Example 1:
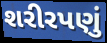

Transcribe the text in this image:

શરીરપણું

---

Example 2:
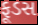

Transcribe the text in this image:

ફૂડસ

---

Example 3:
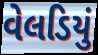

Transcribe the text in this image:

વેલડિયું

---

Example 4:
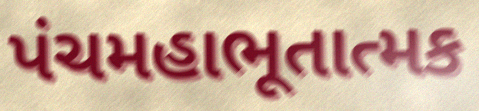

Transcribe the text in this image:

પંચમહાભૂતાત્મક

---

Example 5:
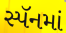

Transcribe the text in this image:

સ્પૅનમાં